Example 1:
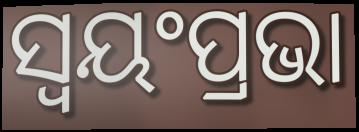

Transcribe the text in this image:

ସ୍ଵୟଂପ୍ରଭା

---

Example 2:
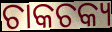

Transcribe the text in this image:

ଚାକଚକ୍ୟ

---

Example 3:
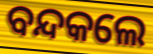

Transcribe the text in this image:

ବନ୍ଦକଲେ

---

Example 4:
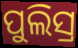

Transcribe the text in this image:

ପୁଲିସ୍ର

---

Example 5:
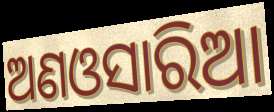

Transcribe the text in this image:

ଅଣଓସାରିଆ